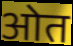
ओत